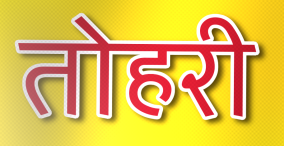
तोहरी